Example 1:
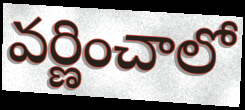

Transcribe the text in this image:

వర్ణించాలో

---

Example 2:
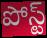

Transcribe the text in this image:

పోస్ట్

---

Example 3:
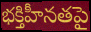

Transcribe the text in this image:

భక్తిహీనతపై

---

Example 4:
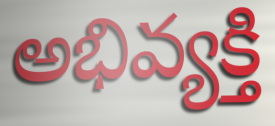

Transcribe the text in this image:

అభివ్యక్తి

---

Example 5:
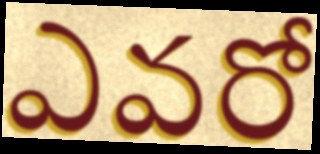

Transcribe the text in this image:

ఎవరో